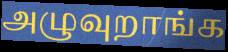
அழுவுறாங்க